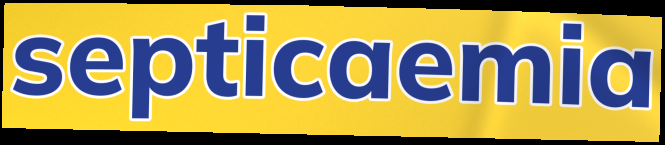
septicaemia